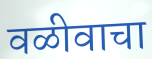
वळीवाचा